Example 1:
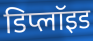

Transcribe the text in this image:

डिप्लॉइड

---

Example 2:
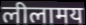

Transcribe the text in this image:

लीलामय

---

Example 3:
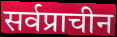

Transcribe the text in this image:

सर्वप्राचीन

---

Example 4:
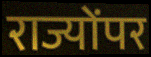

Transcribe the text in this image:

राज्योंपर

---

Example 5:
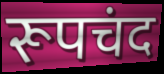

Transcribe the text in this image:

रूपचंद